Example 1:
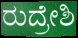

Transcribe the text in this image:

ರುದ್ರೇಶಿ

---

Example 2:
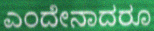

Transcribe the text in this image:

ಎಂದೇನಾದರೂ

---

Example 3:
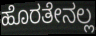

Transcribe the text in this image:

ಹೊರತೇನಲ್ಲ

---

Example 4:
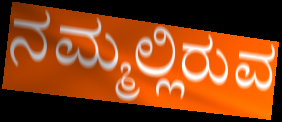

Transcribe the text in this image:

ನಮ್ಮಲ್ಲಿರುವ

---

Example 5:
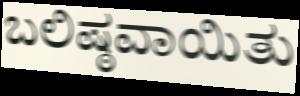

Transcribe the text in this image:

ಬಲಿಷ್ಠವಾಯಿತು